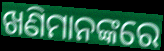
ଖଣିମାନଙ୍କରେ